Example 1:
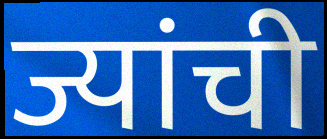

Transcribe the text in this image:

ज्यांची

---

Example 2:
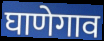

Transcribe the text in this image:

घाणेगाव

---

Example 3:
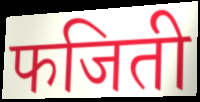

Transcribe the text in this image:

फजिती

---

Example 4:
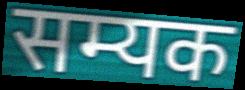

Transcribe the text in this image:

सम्यक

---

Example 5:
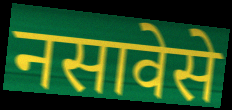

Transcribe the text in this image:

नसावेसे